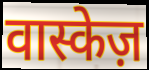
वास्केज़